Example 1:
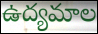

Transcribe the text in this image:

ఉద్యమాల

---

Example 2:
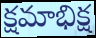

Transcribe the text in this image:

క్షమాభిక్ష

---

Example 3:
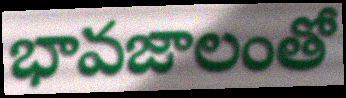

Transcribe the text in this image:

భావజాలంతో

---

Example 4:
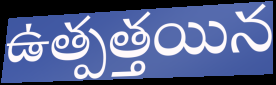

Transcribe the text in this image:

ఉత్పత్తయిన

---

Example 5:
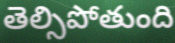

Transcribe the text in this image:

తెల్సిపోతుంది